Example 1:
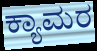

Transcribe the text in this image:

ಕ್ಯಾಮರ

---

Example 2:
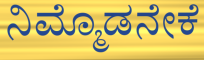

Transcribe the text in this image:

ನಿಮ್ಮೊಡನೇಕೆ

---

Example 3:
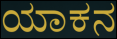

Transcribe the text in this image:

ಯಾಕನ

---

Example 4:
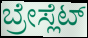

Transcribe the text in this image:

ಬ್ರೇಸ್ಲೆಟ್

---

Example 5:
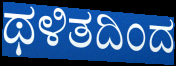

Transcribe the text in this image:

ಥಳಿತದಿಂದ